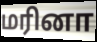
மரினா